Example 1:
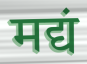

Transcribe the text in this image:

मद्यं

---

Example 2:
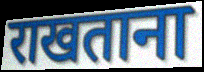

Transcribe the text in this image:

राखताना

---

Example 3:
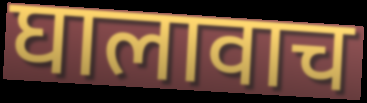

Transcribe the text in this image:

घालावाच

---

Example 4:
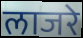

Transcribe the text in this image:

लाजरे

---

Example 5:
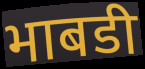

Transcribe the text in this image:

भाबडी